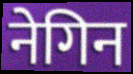
नेगिन